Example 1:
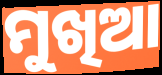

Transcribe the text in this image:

ମୁଖିଆ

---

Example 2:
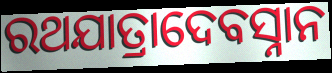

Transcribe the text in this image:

ରଥଯାତ୍ରାଦେବସ୍ନାନ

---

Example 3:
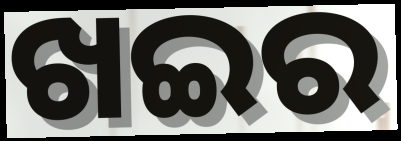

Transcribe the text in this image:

ଖଇର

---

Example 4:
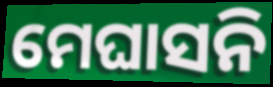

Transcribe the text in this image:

ମେଘାସନି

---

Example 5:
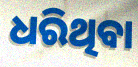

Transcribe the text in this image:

ଧରିଥିବା